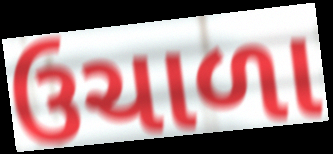
ઉચાળા